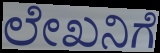
ಲೇಖನಿಗೆ